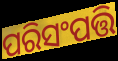
ପରିସଂପତ୍ତି